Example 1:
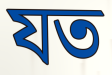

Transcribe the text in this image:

যত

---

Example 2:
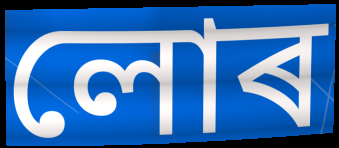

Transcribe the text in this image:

লোৰ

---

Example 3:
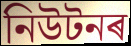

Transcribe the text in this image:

নিউটনৰ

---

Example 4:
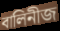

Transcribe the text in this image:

বালিনীজ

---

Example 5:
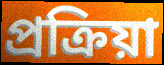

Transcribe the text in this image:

প্ৰক্ৰিয়া